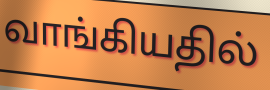
வாங்கியதில்